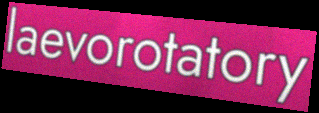
laevorotatory